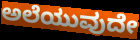
ಅಲೆಯುವುದೇ